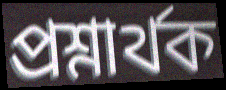
প্ৰশ্নাৰ্থক